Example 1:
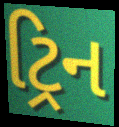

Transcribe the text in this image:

ટ્રિન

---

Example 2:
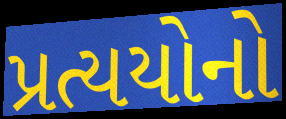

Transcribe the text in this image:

પ્રત્યયોનો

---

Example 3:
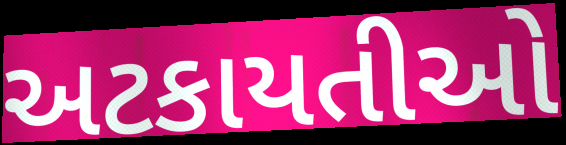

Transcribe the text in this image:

અટકાયતીઓ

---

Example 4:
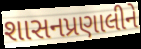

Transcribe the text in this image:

શાસનપ્રણાલીને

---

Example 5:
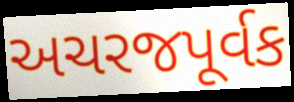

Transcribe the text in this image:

અચરજપૂર્વક